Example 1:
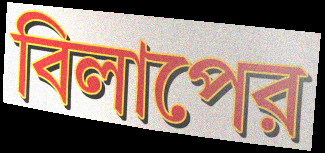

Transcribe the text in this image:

বিলাপের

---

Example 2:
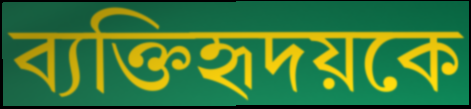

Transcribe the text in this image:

ব্যক্তিহৃদয়কে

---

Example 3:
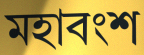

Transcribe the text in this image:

মহাবংশ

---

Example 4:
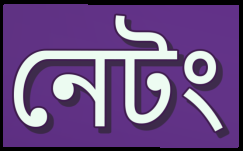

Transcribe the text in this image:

নেটং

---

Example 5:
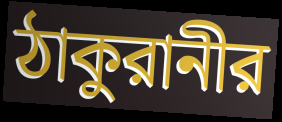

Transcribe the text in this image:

ঠাকুরানীর